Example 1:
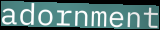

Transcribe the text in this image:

adornment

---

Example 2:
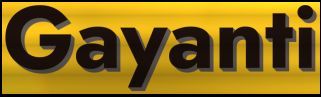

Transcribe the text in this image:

Gayanti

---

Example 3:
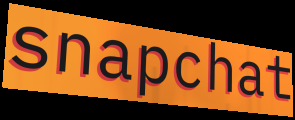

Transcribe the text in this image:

snapchat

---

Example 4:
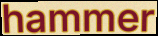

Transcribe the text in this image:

hammer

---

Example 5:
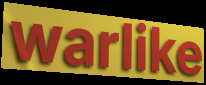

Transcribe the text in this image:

warlike